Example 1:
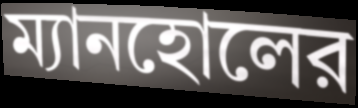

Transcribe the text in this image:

ম্যানহোলের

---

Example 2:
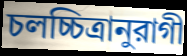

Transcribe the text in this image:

চলচ্চিত্রানুরাগী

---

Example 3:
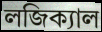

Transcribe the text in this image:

লজিক্যাল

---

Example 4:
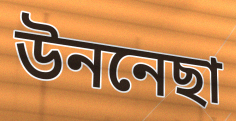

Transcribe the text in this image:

উননেছা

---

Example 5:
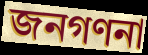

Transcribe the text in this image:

জনগণনা